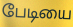
பேடியை